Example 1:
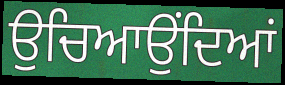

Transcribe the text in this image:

ਉਚਿਆਉਂਦਿਆਂ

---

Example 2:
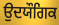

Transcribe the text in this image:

ਉਦਯੌਗਿਕ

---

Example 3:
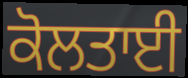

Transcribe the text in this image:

ਕੋਲਤਾਈ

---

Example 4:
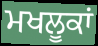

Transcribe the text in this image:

ਮਖਲੂਕਾਂ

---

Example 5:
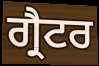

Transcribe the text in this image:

ਗ੍ਰੈਟਰ